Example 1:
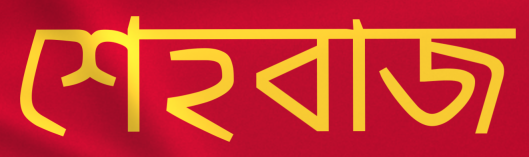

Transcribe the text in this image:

শেহবাজ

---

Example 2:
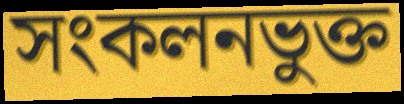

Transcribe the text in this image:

সংকলনভুক্ত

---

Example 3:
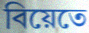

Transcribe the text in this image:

বিয়েতে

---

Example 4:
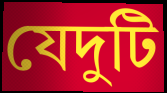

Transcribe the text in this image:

যেদুটি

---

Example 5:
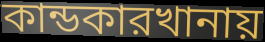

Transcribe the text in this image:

কান্ডকারখানায়